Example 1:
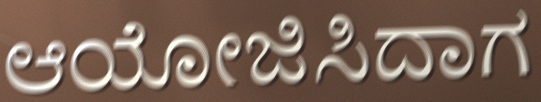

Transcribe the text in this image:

ಆಯೋಜಿಸಿದಾಗ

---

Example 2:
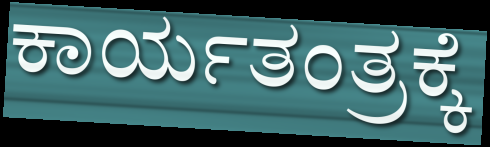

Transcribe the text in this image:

ಕಾರ್ಯತಂತ್ರಕ್ಕೆ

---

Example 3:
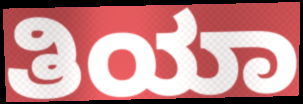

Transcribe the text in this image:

ತಿಯಾ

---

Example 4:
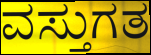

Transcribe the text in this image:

ವಸ್ತುಗತ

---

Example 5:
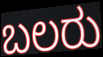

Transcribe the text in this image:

ಬಲರು